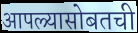
आपल्यासोबतची